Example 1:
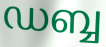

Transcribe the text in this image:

ഡബ്ബ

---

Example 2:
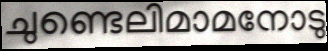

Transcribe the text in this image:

ചുണ്ടെലിമാമനോടു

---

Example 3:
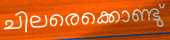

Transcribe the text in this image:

ചിലരെക്കൊണ്ടു്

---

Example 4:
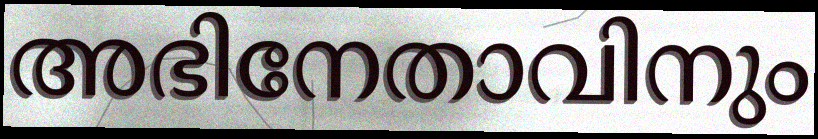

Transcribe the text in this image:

അഭിനേതാവിനും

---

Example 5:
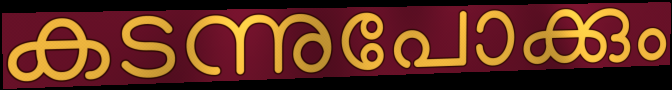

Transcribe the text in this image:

കടന്നുപോക്കും